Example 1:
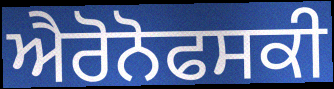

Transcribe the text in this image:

ਐਰੋਨੋਫਸਕੀ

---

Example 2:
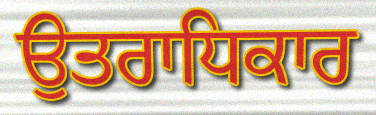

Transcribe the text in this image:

ਉਤਰਾਧਿਕਾਰ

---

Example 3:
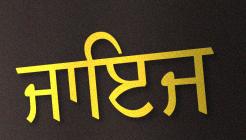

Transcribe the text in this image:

ਜਾਇਜ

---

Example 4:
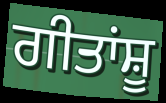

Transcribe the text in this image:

ਗੀਤਾਂਸ਼ੂ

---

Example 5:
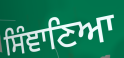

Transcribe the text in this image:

ਸਿੰਞਾਣਿਆ